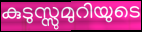
കുടുസ്സുമുറിയുടെ